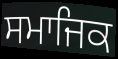
ਸਮਾਜਿਕ